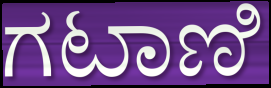
ಗಟಾಣಿ